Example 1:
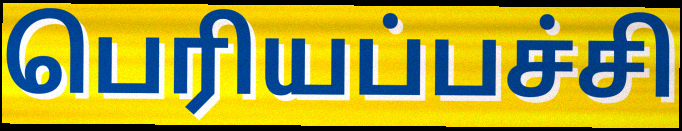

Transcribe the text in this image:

பெரியப்பச்சி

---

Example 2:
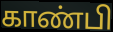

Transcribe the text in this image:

காண்பி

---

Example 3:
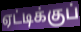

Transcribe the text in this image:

ஏட்டிக்குப்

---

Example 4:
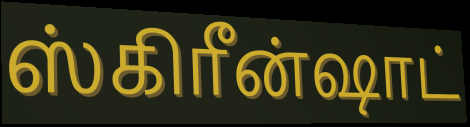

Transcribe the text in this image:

ஸ்கிரீன்ஷாட்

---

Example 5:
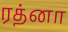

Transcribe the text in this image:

ரத்னா